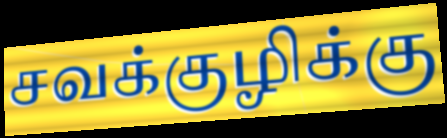
சவக்குழிக்கு